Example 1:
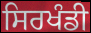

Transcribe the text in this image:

ਸਿਰਖੰਡੀ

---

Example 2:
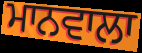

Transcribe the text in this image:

ਮਾਨਵਾਲਾ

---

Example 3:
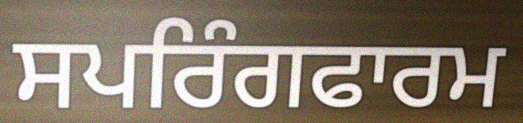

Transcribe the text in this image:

ਸਪਰਿੰਗਫਾਰਮ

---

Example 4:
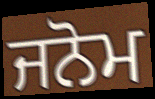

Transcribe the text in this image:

ਜਨੋਮ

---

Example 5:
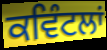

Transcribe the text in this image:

ਕਵਿੰਟਲਾਂ